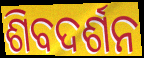
ଶିବଦର୍ଶନ